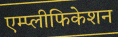
एम्प्लीफिकेशन